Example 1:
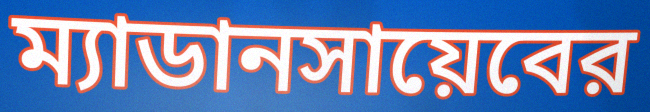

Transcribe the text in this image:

ম্যাডানসায়েবের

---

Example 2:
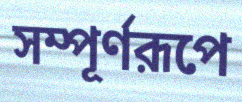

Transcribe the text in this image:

সম্পূর্ণরূপে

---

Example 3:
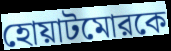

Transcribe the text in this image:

হোয়াটমোরকে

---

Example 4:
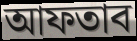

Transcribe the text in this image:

আফতাব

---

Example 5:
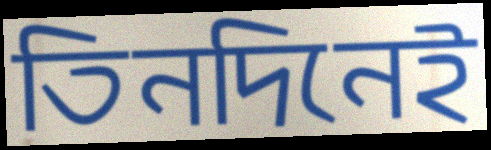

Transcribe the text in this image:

তিনদিনেই